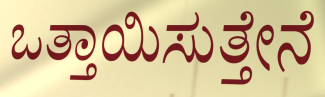
ಒತ್ತಾಯಿಸುತ್ತೇನೆ